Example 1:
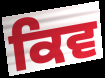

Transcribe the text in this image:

ਕਿਵ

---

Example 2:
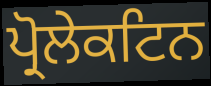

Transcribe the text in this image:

ਪ੍ਰੋਲੇਕਟਿਨ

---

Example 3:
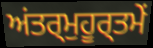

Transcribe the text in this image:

ਅਂਤਰ੍ਮੁਹੂਰ੍ਤਮੇਂ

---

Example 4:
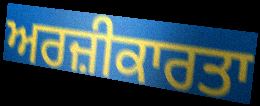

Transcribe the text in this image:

ਅਰਜ਼ੀਕਾਰਤਾ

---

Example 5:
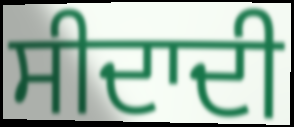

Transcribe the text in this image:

ਸੀਦਾਦੀ